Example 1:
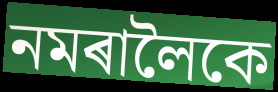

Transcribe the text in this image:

নমৰালৈকে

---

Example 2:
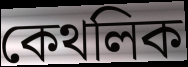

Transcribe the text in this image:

কেথলিক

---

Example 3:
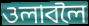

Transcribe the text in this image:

ওলাবলৈ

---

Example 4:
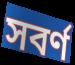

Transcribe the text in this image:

সবৰ্ণ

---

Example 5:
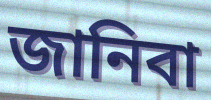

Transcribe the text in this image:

জানিবা